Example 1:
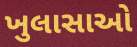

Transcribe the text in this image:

ખુલાસાઓ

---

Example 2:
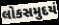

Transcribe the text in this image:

લોકસમુદયં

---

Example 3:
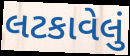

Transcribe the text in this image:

લટકાવેલું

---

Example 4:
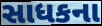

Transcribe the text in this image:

સાધકના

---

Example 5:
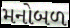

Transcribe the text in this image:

મનોબળ